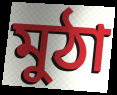
মুঠা